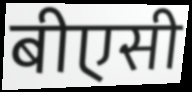
बीएसी